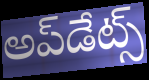
అప్‌డేట్స్